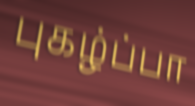
புகழ்ப்பா